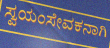
ಸ್ವಯಂಸೇವಕನಾಗಿ